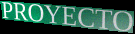
PROYECTO